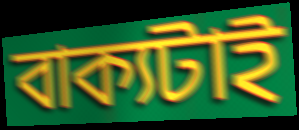
বাক্যটাই